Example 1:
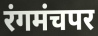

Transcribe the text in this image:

रंगमंचपर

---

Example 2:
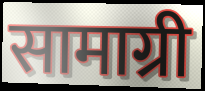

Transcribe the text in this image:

सामाग्री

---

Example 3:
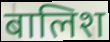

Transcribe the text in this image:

बालिश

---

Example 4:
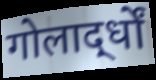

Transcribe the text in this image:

गोलार्द्धों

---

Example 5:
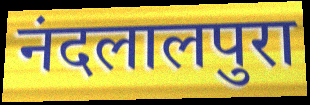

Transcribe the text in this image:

नंदलालपुरा